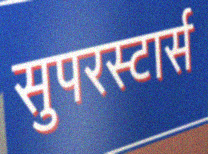
सुपरस्टार्स